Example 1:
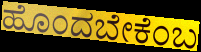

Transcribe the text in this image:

ಹೊಂದಬೇಕೆಂಬ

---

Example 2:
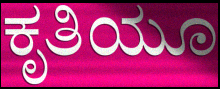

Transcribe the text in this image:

ಕೃತಿಯೂ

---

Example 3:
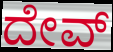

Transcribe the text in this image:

ದೇವ್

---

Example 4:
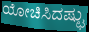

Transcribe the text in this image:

ಯೋಚಿಸಿದಷ್ಟು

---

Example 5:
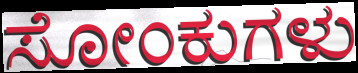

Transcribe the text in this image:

ಸೋಂಕುಗಳು